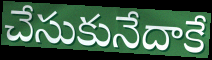
చేసుకునేదాకే